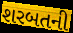
શરબતની